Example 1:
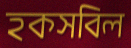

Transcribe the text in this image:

হকসবিল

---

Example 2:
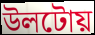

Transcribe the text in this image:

উলটোয়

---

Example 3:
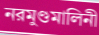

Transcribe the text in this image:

নরমুণ্ডমালিনী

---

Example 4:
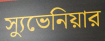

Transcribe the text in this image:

স্যুভেনিয়ার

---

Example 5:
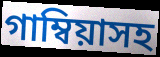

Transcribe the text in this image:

গাম্বিয়াসহ